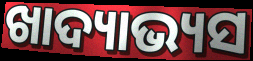
ଖାଦ୍ୟାଭ୍ୟସ